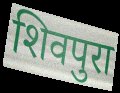
शिवपुरा